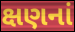
ક્ષણનાં